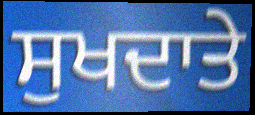
ਸੁਖਦਾਤੇ